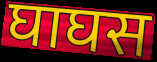
घाघस